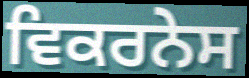
ਵਿਕਰਨੇਸ